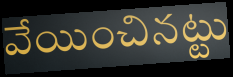
వేయించినట్టు